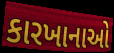
કારખાનાઓ